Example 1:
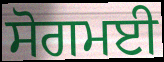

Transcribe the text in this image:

ਸੋਗਮਈ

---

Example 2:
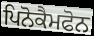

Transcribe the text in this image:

ਪਿਨੋਕੈਮਫੋਨ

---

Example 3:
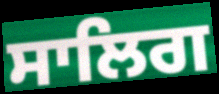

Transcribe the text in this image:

ਸਾਲਿਗ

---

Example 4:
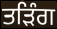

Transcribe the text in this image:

ਤੜਿੰਗ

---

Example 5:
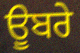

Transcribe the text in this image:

ਊਬਰੇ